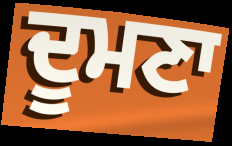
ਦੂਮਣਾ